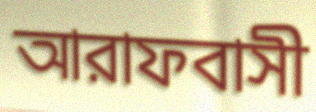
আরাফবাসী